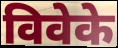
विवेके